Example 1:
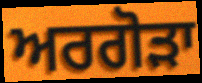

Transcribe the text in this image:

ਅਰਗੋੜਾ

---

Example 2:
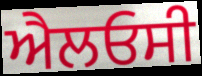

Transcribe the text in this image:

ਐਲਓਸੀ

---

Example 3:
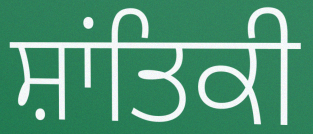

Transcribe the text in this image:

ਸ਼ਾਂਤਿਕੀ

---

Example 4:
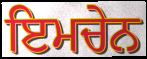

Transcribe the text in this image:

ਇਮਚੇਨ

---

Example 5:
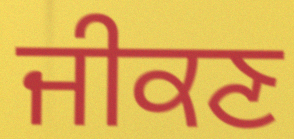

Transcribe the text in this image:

ਜੀਕਣ